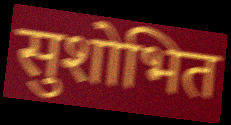
सुशोभित